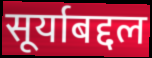
सूर्याबद्दल